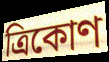
ত্ৰিকোণ